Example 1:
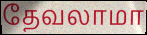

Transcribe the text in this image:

தேவலாமா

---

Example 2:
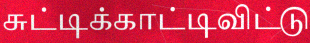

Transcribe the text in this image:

சுட்டிக்காட்டிவிட்டு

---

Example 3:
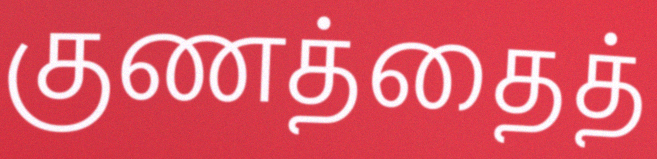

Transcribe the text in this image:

குணத்தைத்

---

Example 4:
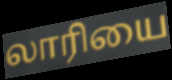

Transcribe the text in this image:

லாரியை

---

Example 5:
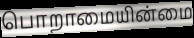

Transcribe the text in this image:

பொறாமையின்மை